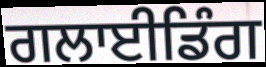
ਗਲਾਈਡਿੰਗ